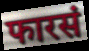
फारसं